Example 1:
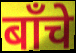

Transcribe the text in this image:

बाँचे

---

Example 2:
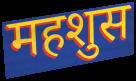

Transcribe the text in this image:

महशुस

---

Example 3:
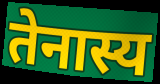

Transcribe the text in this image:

तेनास्य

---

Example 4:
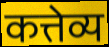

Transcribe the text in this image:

कत्तेव्य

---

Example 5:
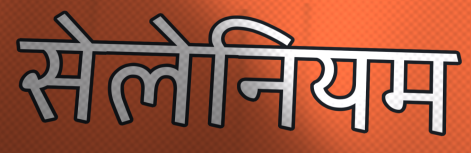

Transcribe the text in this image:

सेलेनियम